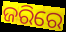
ଜରିରେ